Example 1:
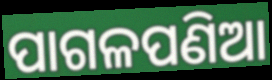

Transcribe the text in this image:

ପାଗଳପଣିଆ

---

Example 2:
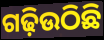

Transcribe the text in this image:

ଗଢ଼ିଉଠିଛି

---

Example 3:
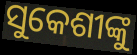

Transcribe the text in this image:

ସୁକେଶୀଙ୍କୁ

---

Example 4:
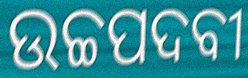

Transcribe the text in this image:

ଉଚ୍ଚପଦବୀ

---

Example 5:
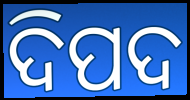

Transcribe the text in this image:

ଦିପଦ